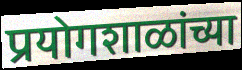
प्रयोगशाळांच्या